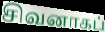
சிவனாகப்